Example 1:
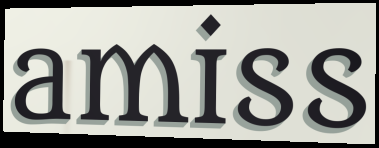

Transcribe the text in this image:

amiss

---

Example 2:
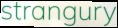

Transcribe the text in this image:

strangury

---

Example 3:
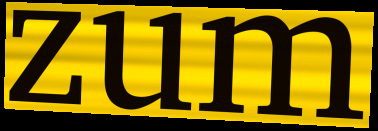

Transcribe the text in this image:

zum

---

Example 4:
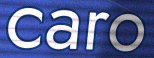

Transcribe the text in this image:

caro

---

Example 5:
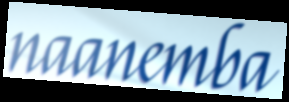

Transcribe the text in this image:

naanemba